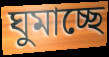
ঘুমাচ্ছে